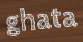
ghata